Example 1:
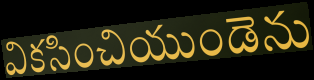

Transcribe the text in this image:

వికసించియుండెను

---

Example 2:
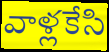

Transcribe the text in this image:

వాళ్లకేసి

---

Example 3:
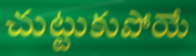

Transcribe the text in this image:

చుట్టుకుపోయే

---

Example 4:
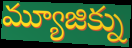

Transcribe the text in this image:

మ్యూజిక్ను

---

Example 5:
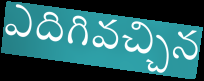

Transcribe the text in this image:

ఎదిగివచ్చిన